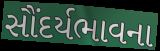
સૌંદર્યભાવના